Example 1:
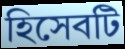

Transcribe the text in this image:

হিসেবটি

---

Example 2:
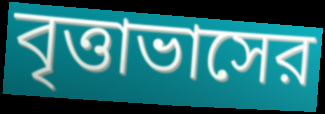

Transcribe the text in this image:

বৃত্তাভাসের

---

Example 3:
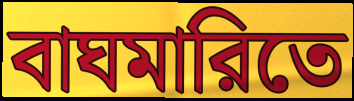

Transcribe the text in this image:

বাঘমারিতে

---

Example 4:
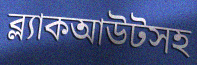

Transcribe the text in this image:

ব্ল্যাকআউটসহ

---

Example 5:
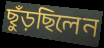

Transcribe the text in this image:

ছুঁড়ছিলেন